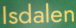
Isdalen